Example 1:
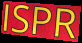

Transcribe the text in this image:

ISPR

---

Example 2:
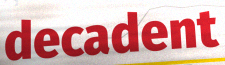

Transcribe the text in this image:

decadent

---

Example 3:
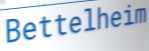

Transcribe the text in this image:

Bettelheim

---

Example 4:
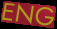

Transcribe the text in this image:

ENG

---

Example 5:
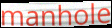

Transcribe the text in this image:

manhole